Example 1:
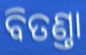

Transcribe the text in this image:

ବିତଣ୍ତା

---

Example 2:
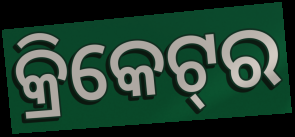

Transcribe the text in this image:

କ୍ରିକେଟ୍‌ର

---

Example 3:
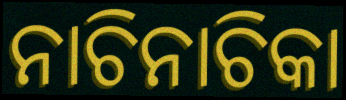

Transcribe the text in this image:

ନାଚିନାଚିକା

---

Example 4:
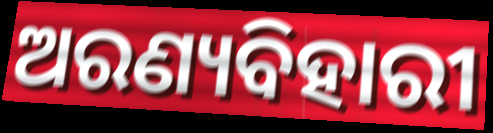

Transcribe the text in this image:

ଅରଣ୍ୟବିହାରୀ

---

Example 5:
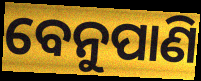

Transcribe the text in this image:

ବେନୁପାଣି